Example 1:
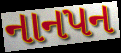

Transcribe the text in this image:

નાનપન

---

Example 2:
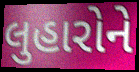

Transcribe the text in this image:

લુહારોને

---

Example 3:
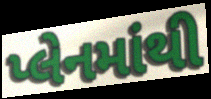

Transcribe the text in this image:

પ્લેનમાંથી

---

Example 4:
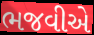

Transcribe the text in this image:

ભજવીએ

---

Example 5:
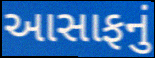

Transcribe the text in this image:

આસાફનું